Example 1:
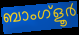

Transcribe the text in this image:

ബാംഗ്ളൂർ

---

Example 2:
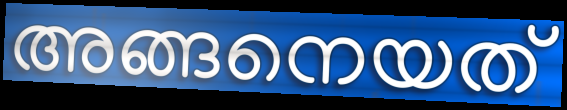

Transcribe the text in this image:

അങ്ങനെയത്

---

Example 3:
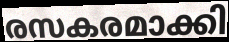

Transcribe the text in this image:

രസകരമാക്കി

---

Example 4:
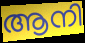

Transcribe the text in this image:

ആനി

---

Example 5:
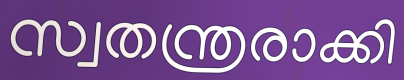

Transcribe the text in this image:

സ്വതന്ത്രരാക്കി